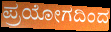
ಪ್ರಯೋಗದಿಂದ